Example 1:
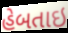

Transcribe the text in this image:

હેબતાઇ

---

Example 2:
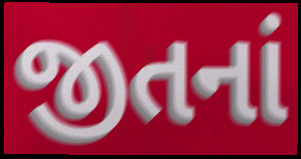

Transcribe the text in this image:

જીતનાં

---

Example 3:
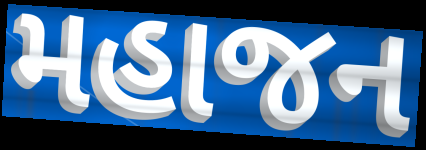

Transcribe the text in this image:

મહાજન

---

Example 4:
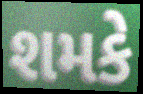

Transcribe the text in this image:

શમકે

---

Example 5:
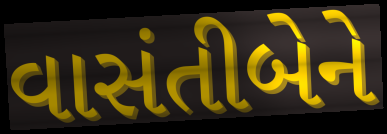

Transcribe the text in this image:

વાસંતીબેને